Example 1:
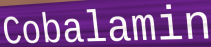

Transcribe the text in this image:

Cobalamin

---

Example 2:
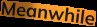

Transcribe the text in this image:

Meanwhile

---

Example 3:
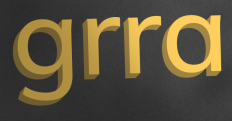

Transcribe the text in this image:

grra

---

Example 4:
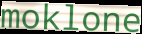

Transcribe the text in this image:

moklone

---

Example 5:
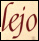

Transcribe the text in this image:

lejo